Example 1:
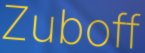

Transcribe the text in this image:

Zuboff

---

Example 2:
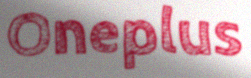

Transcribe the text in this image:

Oneplus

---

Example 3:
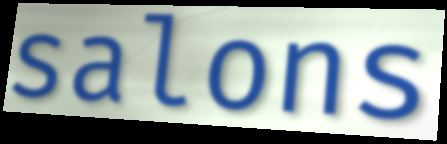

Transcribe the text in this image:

salons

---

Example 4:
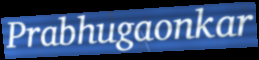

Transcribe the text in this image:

Prabhugaonkar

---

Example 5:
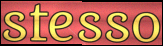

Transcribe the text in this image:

stesso